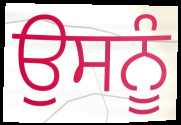
ਉਸਨੂੰ